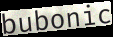
bubonic